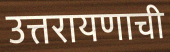
उत्तरायणाची